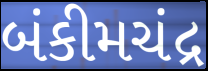
બંકીમચંદ્ર